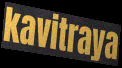
kavitraya